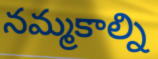
నమ్మకాల్ని